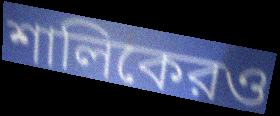
শালিকেরও